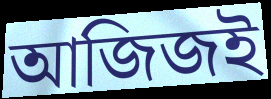
আজিজই